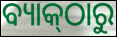
ବ୍ୟାକ୍‌ଠାରୁ